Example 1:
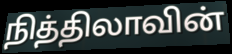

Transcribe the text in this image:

நித்திலாவின்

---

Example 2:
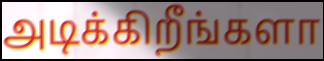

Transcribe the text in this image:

அடிக்கிறீங்களா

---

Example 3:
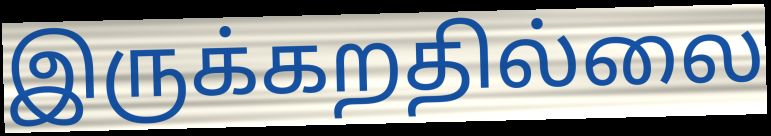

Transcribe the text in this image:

இருக்கறதில்லை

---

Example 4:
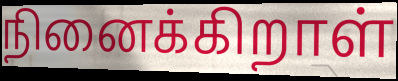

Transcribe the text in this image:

நினைக்கிறாள்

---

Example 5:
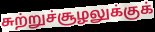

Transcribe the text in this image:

சுற்றுச்சூழலுக்குக்